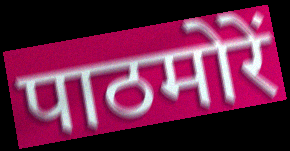
पाठमोरें